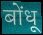
बोंधू